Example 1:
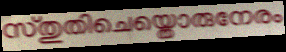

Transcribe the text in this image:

സ്തുതിചെയ്തൊരുനേരം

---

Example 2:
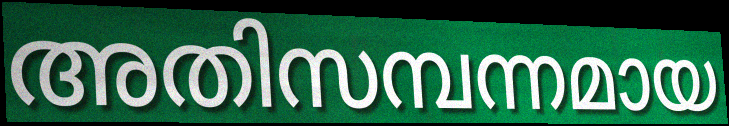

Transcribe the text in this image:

അതിസമ്പന്നമായ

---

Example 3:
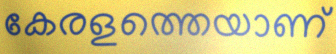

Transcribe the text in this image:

കേരളത്തെയാണ്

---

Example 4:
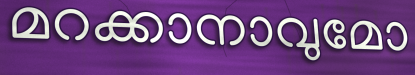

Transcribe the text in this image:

മറക്കാനാവുമോ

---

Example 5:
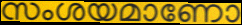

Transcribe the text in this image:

സംശയമാണോ